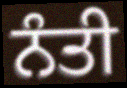
ਨੰਤੀ